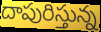
దాపురిస్తున్న